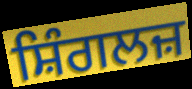
ਸ਼ਿੰਗਲਜ਼